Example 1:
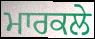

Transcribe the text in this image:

ਮਾਰਕਲੇ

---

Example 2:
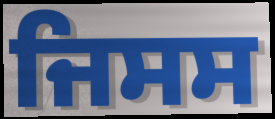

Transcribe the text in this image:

ਜਿਸਸ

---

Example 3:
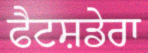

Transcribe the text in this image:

ਫੈਟਸ਼ਡੇਰਾ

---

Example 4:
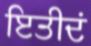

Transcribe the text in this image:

ਇਤੀਦਂ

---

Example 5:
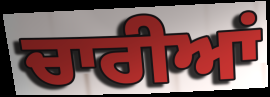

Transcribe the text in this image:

ਚਾਰੀਆਂ